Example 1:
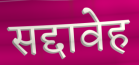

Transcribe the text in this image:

सद्दावेह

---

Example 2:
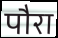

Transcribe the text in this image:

पौरा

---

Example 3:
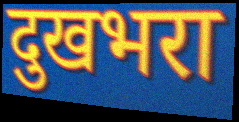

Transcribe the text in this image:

दुखभरा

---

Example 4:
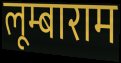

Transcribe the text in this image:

लूम्बाराम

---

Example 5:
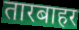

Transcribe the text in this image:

तारबाहर